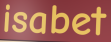
isabet